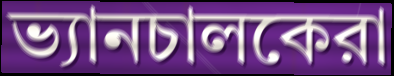
ভ্যানচালকেরা